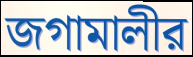
জগামালীর